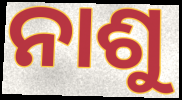
ନାଶୁ